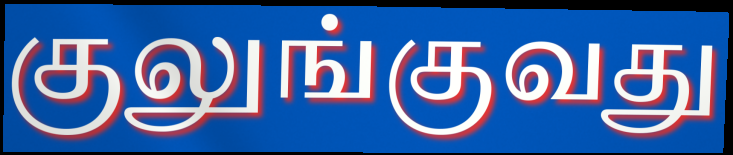
குலுங்குவது